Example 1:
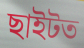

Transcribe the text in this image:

ছাইটত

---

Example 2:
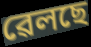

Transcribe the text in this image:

ৱেলছে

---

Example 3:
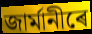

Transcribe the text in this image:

জাৰ্মানীৰে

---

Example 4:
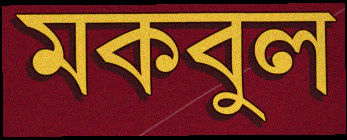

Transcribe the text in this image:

মকবুল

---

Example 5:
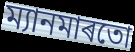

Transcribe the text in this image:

ম্যানমাৰতো